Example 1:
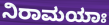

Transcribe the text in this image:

ನಿರಾಮಯಾಃ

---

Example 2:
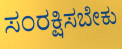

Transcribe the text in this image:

ಸಂರಕ್ಷಿಸಬೇಕು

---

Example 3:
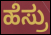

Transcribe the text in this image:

ಹೆಸ್ರು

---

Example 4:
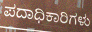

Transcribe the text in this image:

ಪದಾಧಿಕಾರಿಗಳು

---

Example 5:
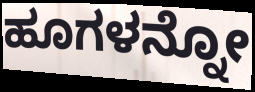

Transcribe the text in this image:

ಹೂಗಳನ್ನೋ